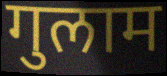
गुलाम